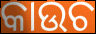
କାଉଚ